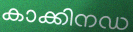
കാക്കിനഡ